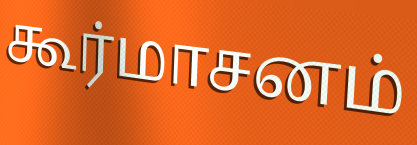
கூர்மாசனம்